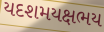
યદશમયક્ષભય